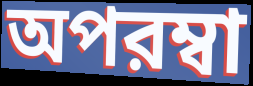
অপরম্বা